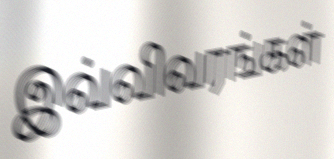
இவ்விவரங்கள்